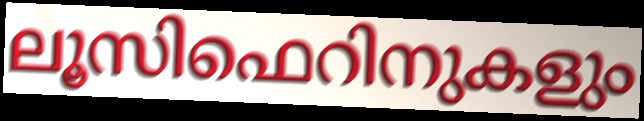
ലൂസിഫെറിനുകളും